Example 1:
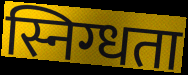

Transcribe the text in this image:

स्निग्धता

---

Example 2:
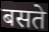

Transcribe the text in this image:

बसते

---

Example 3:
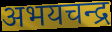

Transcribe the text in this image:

अभयचन्द्र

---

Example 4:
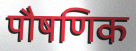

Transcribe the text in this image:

पौषणिक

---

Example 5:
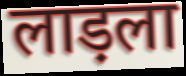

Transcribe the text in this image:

लाड़ला